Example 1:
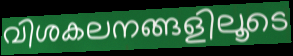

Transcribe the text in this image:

വിശകലനങ്ങളിലൂടെ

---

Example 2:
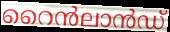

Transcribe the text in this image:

റൈൻലാൻഡ്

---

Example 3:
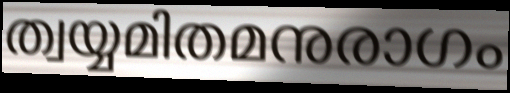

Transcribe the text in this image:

ത്വയ്യമിതമനുരാഗം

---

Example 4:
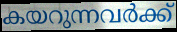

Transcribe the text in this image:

കയറുന്നവർക്ക്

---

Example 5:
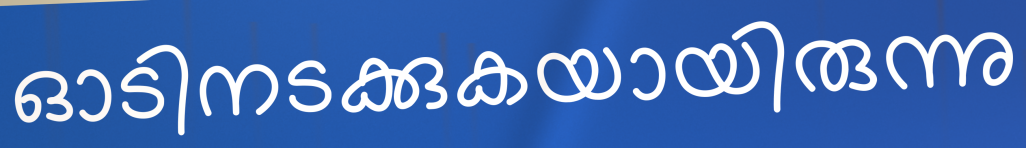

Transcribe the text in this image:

ഓടിനടക്കുകയായിരുന്നു